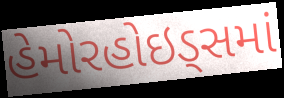
હેમોરહોઇડ્સમાં